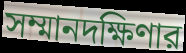
সম্মানদক্ষিণার